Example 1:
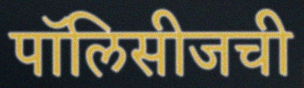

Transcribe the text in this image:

पॉलिसीजची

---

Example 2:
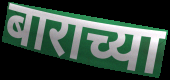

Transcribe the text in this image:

बाराच्या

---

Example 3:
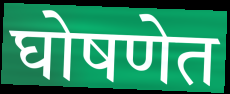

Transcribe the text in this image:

घोषणेत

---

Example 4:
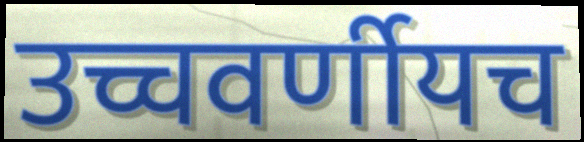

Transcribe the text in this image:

उच्चवर्णीयच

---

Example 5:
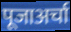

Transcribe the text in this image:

पूजाअर्चा